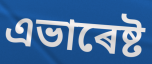
এভাৰেষ্ট